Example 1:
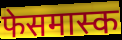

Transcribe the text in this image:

फेसमास्क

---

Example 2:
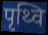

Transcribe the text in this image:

पृथ्वि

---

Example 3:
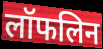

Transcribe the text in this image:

लॉफलिन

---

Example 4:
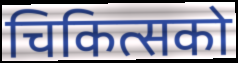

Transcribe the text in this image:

चिकित्सको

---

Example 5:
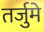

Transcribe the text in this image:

तर्जुमे